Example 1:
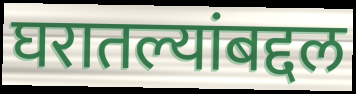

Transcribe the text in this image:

घरातल्यांबद्दल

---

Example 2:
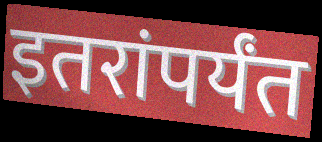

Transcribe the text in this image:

इतरांपर्यंत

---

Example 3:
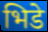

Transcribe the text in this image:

भिडे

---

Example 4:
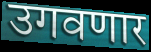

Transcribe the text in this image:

उगवणार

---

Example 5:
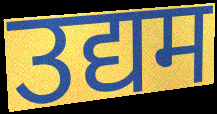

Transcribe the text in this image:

उद्यम